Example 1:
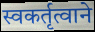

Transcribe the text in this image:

स्वकर्तृत्वाने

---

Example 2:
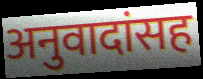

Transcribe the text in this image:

अनुवादांसह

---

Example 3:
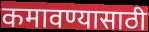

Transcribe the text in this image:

कमावण्यासाठी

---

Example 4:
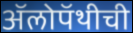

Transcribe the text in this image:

ॲलोपॅथीची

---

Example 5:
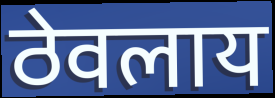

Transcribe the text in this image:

ठेवलाय